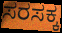
ಸರಸಕ್ಕ